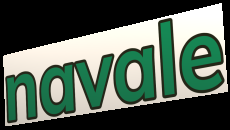
navale